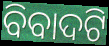
ବିବାଦଟି